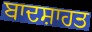
ਬਾਦਸ਼ਾਹਤ